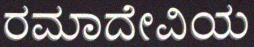
ರಮಾದೇವಿಯ